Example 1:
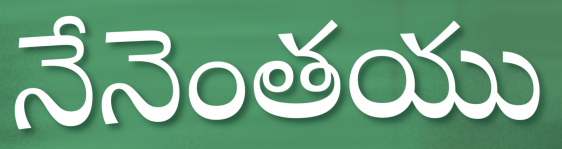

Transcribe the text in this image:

నేనెంతయు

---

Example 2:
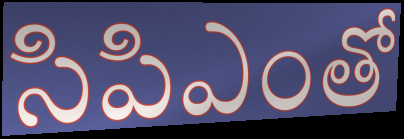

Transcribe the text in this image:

సిపిఎంతో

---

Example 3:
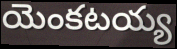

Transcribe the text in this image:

యెంకటయ్య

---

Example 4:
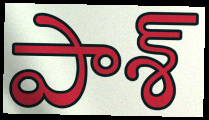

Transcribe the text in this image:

పాశ్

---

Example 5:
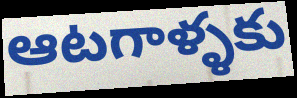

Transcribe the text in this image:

ఆటగాళ్ళకు